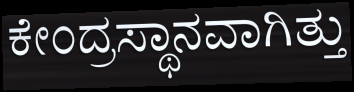
ಕೇಂದ್ರಸ್ಥಾನವಾಗಿತ್ತು